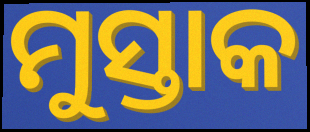
ମୁସ୍ତାକ